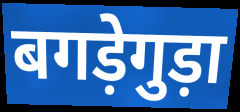
बगड़ेगुड़ा